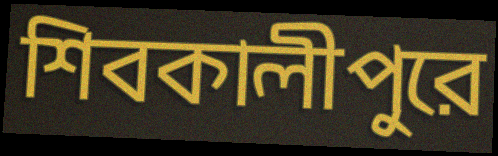
শিবকালীপুরে